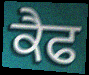
ਕੈਫ